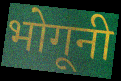
भोगूनी